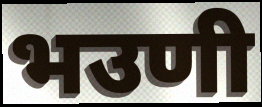
भउणी